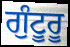
ਗੁੰਟੂਰੂ